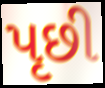
પૃછી